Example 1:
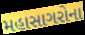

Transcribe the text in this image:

મહાસાગરોના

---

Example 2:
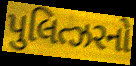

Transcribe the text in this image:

પુલિત્ઝરનો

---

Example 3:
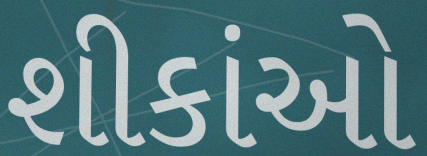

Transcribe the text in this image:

શીકાંઓ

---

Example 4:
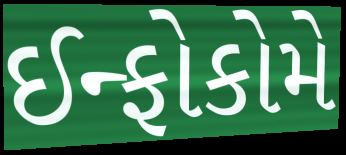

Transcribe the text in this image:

ઈન્ફોકોમે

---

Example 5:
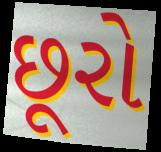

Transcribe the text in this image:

છૂરો